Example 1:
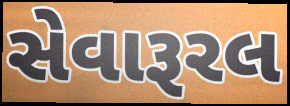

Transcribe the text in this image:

સેવારૂરલ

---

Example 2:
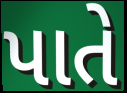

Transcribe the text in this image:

પાતે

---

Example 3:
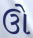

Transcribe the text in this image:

ઉો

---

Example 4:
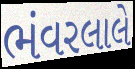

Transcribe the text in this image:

ભંવરલાલે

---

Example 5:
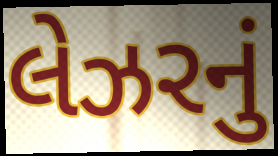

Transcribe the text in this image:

લેઝરનું